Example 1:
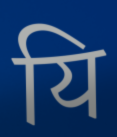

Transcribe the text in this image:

यि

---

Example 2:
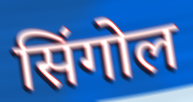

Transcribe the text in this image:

सिंगोल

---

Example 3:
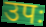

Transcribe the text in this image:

उपः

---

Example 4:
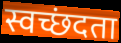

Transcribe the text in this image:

स्वच्छंदता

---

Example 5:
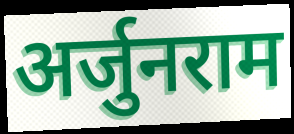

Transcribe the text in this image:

अर्जुनराम